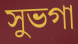
সুভগা